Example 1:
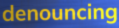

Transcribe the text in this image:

denouncing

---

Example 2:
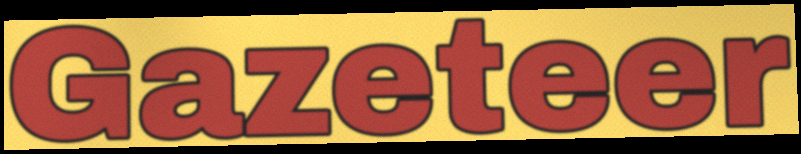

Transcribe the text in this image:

Gazeteer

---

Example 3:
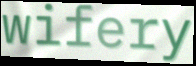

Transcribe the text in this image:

wifery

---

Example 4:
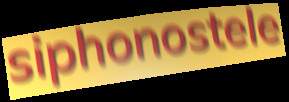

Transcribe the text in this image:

siphonostele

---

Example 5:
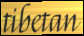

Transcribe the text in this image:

tibetan